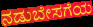
ನಡುಬೇಸಗೆಯ